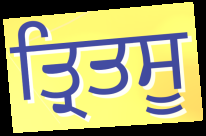
ਤ੍ਰਿਤਸੂ